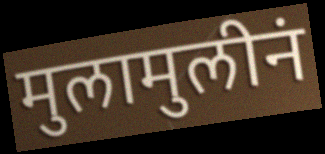
मुलामुलीनं